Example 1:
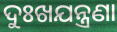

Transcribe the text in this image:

ଦୁଃଖଯନ୍ତ୍ରଣା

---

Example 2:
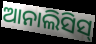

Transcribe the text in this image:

ଆନାଲିସିସ୍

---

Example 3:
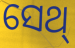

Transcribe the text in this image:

ସେଥ୍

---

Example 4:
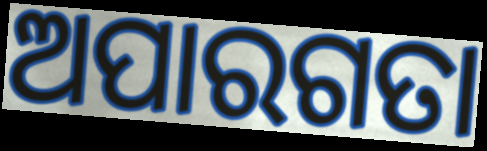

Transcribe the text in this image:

ଅପାରଗତା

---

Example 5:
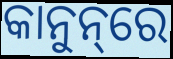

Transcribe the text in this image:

କାନୁନ୍‌ରେ